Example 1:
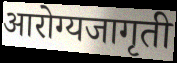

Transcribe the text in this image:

आरोग्यजागृती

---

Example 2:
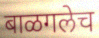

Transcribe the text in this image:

बाळगलेच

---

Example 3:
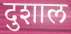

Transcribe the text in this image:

दुशाल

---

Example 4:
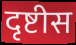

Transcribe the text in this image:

दृष्टीस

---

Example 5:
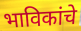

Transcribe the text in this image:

भाविकांचे